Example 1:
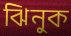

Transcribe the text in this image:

ঝিনুক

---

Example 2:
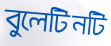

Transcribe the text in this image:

বুলেটিনটি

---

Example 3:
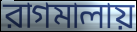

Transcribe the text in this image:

রাগমালায়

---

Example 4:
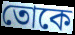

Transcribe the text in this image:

তোকে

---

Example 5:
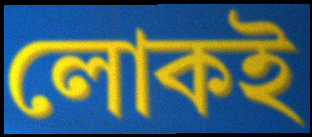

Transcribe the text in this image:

লোকই